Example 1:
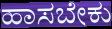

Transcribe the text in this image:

ಹಾಸಬೇಕು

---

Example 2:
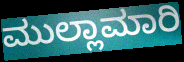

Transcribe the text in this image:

ಮುಲ್ಲಾಮಾರಿ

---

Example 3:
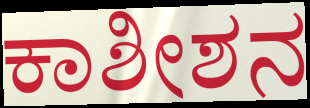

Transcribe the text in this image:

ಕಾಶೀಶನ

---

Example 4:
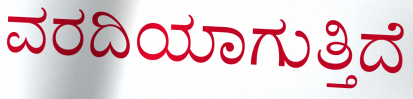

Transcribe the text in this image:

ವರದಿಯಾಗುತ್ತಿದೆ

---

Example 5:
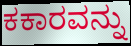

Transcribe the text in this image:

ಕಕಾರವನ್ನು